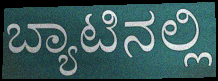
ಬ್ಯಾಟಿನಲ್ಲಿ